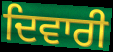
ਦਿਵਾਰੀ